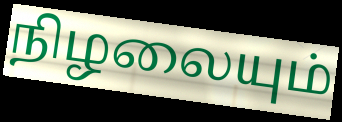
நிழலையும்